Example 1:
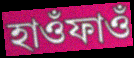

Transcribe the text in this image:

হাওঁফাওঁ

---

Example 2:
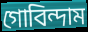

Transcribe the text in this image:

গোবিন্দাম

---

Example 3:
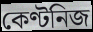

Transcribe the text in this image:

কেণ্টনিজ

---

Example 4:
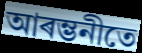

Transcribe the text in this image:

আৰম্ভনীতে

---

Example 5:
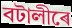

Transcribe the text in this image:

বটালীৰে